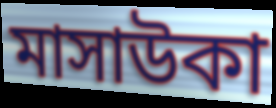
মাসাউকা